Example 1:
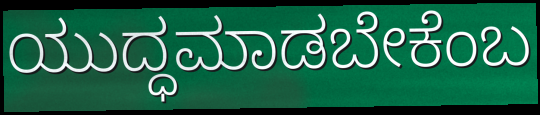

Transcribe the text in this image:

ಯುದ್ಧಮಾಡಬೇಕೆಂಬ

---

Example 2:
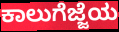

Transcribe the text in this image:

ಕಾಲುಗೆಜ್ಜೆಯ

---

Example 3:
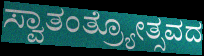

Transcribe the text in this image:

ಸ್ವಾತಂತ್ರ್ಯೋತ್ಸವದ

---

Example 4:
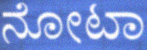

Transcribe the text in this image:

ನೋಟಾ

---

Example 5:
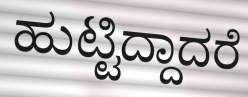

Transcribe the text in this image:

ಹುಟ್ಟಿದ್ದಾದರೆ